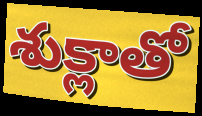
శుక్లాతో